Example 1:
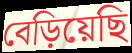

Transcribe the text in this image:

বেড়িয়েছি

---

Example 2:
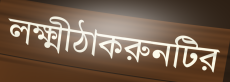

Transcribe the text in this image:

লক্ষ্মীঠাকরুনটির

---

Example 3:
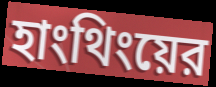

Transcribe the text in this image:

হাংথিংয়ের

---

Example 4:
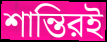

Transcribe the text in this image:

শান্তিরই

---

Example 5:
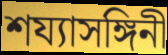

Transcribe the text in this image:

শয্যাসঙ্গিনী